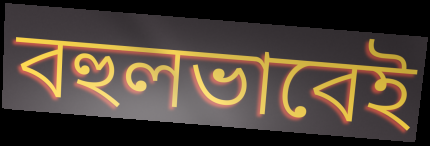
বহুলভাবেই